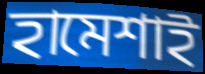
হামেশাই